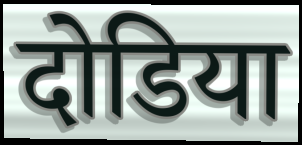
दोडिया